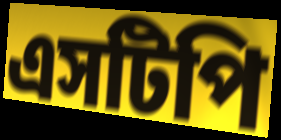
এসটিপি